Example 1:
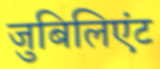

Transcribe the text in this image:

जुबिलिएंट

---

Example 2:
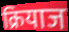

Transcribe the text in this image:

क्रियाज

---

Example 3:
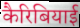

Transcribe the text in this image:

कैरिबियाई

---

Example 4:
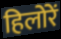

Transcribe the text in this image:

हिलोरें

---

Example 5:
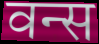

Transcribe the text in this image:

वन्स